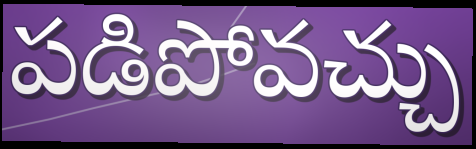
పడిపోవచ్చు